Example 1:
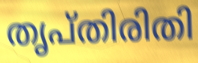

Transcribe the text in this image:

തൃപ്തിരിതി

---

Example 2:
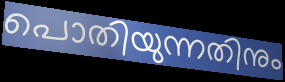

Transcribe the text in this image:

പൊതിയുന്നതിനും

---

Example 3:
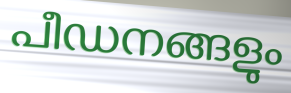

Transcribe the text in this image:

പീഡനങ്ങളും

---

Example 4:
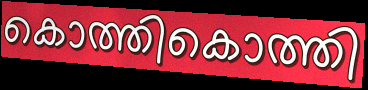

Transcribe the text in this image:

കൊത്തികൊത്തി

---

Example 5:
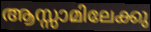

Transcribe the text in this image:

ആസ്സാമിലേക്കു